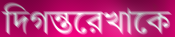
দিগন্তরেখাকে